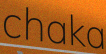
chaka